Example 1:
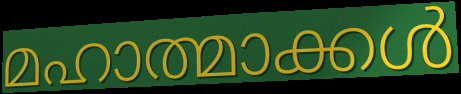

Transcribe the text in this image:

മഹാത്മാക്കൾ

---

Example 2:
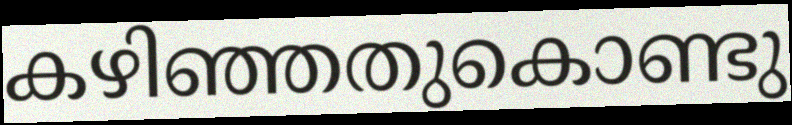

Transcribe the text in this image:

കഴിഞ്ഞതുകൊണ്ടു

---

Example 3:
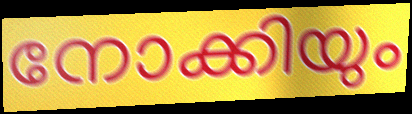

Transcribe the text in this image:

നോക്കിയും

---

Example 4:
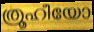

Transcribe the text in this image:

ത്രൂഹീയോ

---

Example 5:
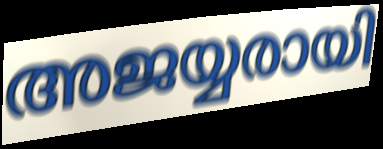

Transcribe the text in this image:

അജയ്യരായി